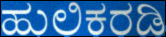
ಹುಲಿಕರಡಿ